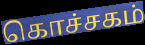
கொச்சகம்